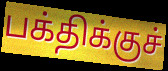
பக்திக்குச்